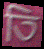
তি